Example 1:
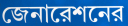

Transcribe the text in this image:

জেনারেশনের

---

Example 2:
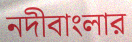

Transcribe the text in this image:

নদীবাংলার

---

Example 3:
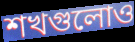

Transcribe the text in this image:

শখগুলোও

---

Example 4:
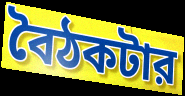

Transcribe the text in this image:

বৈঠকটার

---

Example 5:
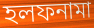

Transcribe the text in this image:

হলফনামা